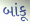
બાંકૂ